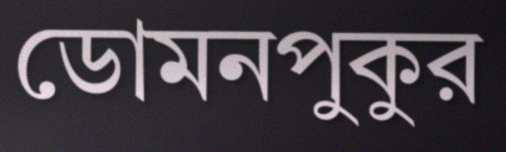
ডোমনপুকুর